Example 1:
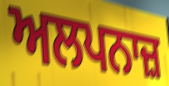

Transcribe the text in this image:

ਅਲਪਨਾਜ਼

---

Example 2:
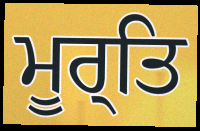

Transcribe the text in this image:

ਮੂਰ੍ਤਿ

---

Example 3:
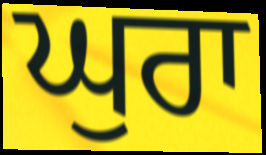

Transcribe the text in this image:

ਘੁਰਾ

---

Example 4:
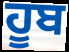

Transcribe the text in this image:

ਹੂਬ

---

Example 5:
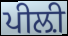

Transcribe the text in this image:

ਪੀਲ਼ੀ